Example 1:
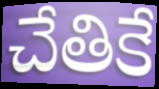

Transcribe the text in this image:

చేతికే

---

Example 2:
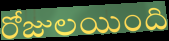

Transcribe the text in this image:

రోజులయింది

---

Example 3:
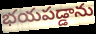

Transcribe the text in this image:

భయపడ్డాను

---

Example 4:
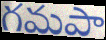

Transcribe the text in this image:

గమపా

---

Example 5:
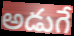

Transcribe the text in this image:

అడుగే